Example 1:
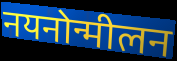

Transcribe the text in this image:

नयनोन्मीलन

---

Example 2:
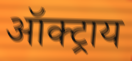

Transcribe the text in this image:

ऑक्ट्राय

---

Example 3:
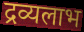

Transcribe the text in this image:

द्रव्यलाभ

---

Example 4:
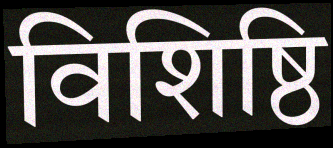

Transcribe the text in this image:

विशिष्ठि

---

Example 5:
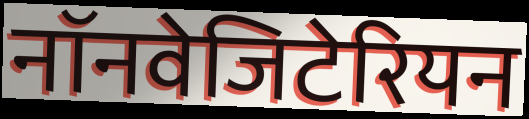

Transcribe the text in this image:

नॉनवेजिटेरियन